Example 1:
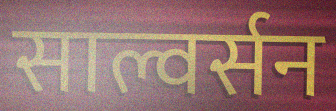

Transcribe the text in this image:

साल्वर्सन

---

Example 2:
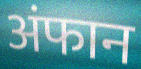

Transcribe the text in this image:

अंफान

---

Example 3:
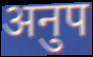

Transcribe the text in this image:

अनुप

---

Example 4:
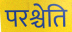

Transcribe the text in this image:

परश्चेति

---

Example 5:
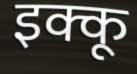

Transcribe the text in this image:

इक्कू